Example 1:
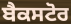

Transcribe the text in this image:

ਬੈਕਸਟੋਰ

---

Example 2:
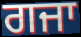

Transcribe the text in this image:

ਗਜਾ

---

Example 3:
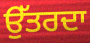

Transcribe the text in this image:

ਉੱਤਰਦਾ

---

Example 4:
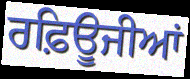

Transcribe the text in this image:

ਰਫ਼ਿਊਜੀਆਂ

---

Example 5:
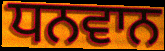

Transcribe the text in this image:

ਧਨਵਾਨ